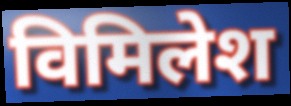
विमिलेश